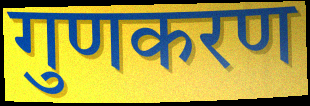
गुणकरण